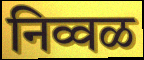
निव्वळ